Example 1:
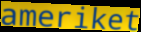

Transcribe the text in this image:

ameriket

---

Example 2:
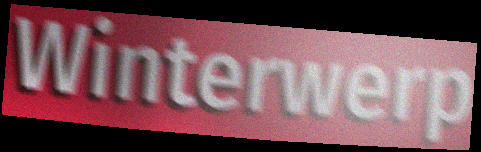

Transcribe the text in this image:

Winterwerp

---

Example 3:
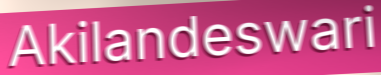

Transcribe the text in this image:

Akilandeswari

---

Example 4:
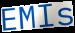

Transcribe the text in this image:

EMIs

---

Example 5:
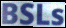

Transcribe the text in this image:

BSLs